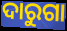
ଦାରୁଗା